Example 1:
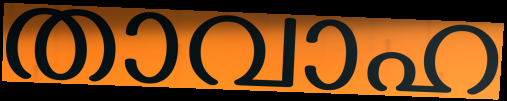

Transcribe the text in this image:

താവാഹ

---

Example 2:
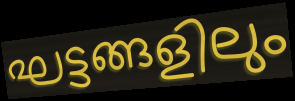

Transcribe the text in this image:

ഘട്ടങ്ങളിലും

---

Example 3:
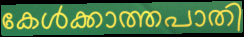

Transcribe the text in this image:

കേൾക്കാത്തപാതി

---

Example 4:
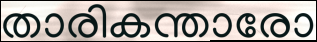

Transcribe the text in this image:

താരികന്താരോ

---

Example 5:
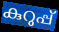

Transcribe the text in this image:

കുറുപ്പ്